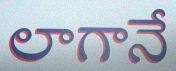
లాగానే